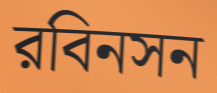
রবিনসন